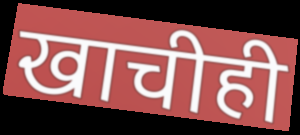
खाचीही